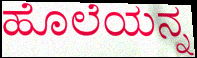
ಹೊಲೆಯನ್ನ